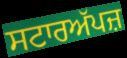
ਸਟਾਰਅੱਪਜ਼